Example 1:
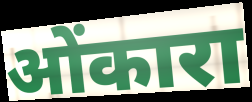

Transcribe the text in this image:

ओंकारा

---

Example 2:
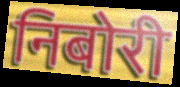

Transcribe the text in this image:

निबोरी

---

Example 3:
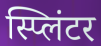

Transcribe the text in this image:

स्प्लिंटर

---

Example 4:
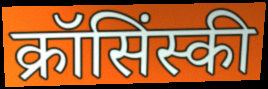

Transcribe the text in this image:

क्रॉसिंस्की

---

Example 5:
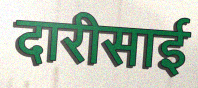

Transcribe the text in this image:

दारीसाई